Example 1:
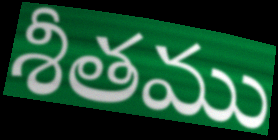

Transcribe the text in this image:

శీతము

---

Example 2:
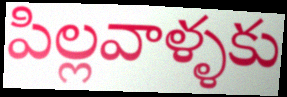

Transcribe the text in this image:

పిల్లవాళ్ళకు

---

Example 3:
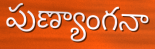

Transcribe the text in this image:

పుణ్యాంగనా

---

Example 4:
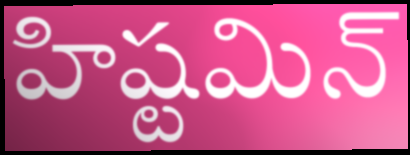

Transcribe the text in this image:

హిష్టమిన్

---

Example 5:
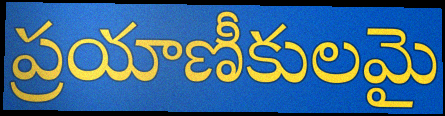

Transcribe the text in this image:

ప్రయాణీకులమై